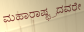
ಮಹಾರಾಷ್ಟ್ರದವರೇ